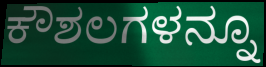
ಕೌಶಲಗಳನ್ನೂ